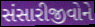
સંસારીજીવોને